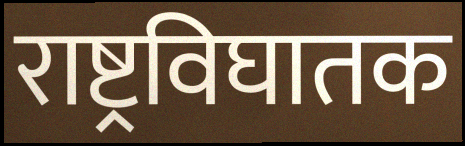
राष्ट्रविघातक